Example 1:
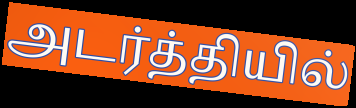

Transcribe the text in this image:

அடர்த்தியில்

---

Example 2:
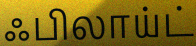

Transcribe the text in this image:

ஃபிலாய்ட்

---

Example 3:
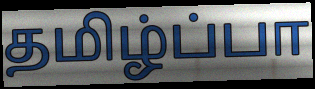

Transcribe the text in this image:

தமிழ்ப்பா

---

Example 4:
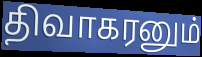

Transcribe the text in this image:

திவாகரனும்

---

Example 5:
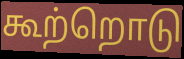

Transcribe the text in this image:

கூற்றொடு